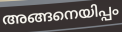
അങ്ങനെയിപ്പം